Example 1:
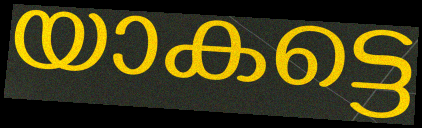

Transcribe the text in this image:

യാകട്ടെ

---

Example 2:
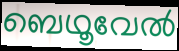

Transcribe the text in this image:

ബെഥൂവേൽ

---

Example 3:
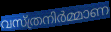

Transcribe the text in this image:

വസ്ത്രനിർമ്മാണ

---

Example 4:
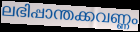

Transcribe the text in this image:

ലഭിപ്പാന്തക്കവണ്ണം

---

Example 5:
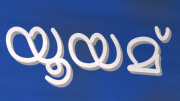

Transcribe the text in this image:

യൂയമ്